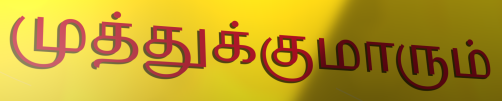
முத்துக்குமாரும்